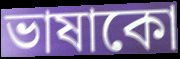
ভাষাকো